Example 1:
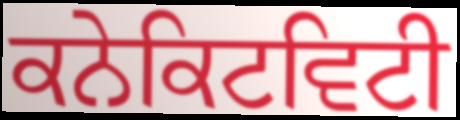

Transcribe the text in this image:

ਕਨੇਕਿਟਵਿਟੀ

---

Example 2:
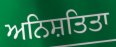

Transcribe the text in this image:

ਅਨਿਸ਼ਤਿਤਾ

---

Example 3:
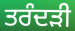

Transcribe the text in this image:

ਤਰੰਦੜੀ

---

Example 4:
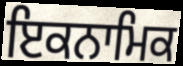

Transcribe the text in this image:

ਇਕਨਾਮਿਕ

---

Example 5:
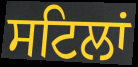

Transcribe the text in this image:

ਸਟਿਲਾਂ